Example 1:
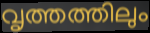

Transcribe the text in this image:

വൃത്തത്തിലും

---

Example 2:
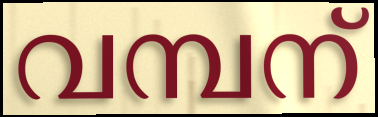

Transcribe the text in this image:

വമ്പന്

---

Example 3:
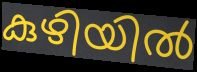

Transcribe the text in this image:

കുഴിയിൽ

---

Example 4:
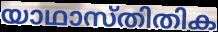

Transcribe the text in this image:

യാഥാസ്തിതിക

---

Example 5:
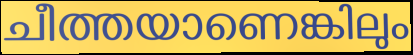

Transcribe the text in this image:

ചീത്തയാണെങ്കിലും